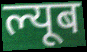
ल्यूब